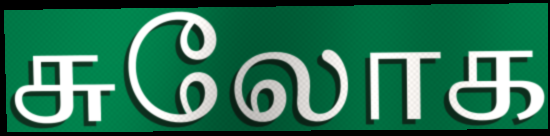
சுலோக